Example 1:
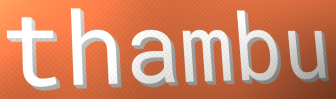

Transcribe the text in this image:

thambu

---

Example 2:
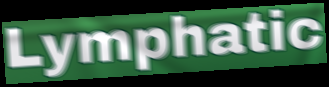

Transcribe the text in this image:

Lymphatic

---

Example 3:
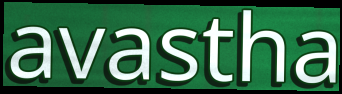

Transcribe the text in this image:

avastha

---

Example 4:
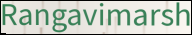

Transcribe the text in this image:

Rangavimarsh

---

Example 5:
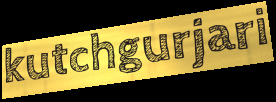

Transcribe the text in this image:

kutchgurjari